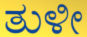
ತುಳೀ